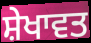
ਸ਼ੇਖਾਵਤ